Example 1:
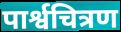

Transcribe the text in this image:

पार्श्वचित्रण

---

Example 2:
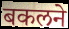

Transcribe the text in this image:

बकलने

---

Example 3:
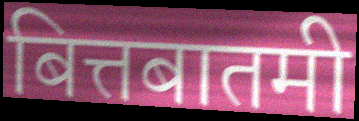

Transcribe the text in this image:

बित्तबातमी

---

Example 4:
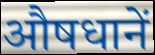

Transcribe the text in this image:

औषधानें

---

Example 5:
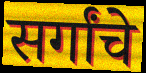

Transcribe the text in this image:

सर्गांचे